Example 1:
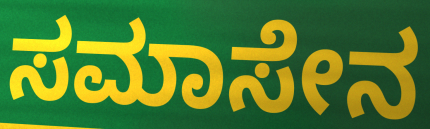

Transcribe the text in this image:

ಸಮಾಸೇನ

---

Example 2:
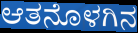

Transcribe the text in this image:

ಆತನೊಳಗಿನ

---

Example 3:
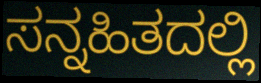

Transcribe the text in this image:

ಸನ್ನಹಿತದಲ್ಲಿ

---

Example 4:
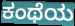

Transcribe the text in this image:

ಕಂಥೆಯ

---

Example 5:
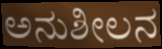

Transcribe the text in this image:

ಅನುಶೀಲನ